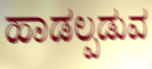
ಹಾಡಲ್ಪಡುವ